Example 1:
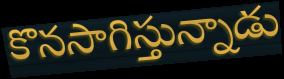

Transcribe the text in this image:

కొనసాగిస్తున్నాడు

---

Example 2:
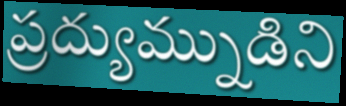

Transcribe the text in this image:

ప్రద్యుమ్నుడిని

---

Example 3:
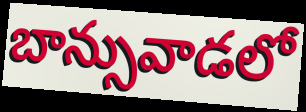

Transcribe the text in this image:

బాన్సువాడలో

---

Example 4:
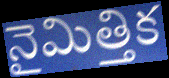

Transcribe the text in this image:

నైమిత్తిక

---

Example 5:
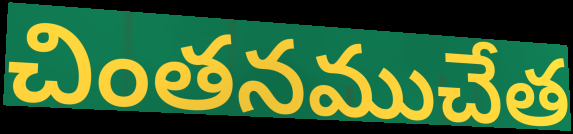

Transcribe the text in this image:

చింతనముచేత